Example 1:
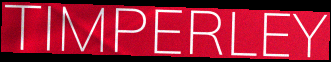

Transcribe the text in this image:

TIMPERLEY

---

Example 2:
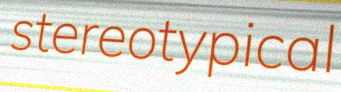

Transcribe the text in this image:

stereotypical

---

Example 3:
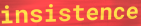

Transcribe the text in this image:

insistence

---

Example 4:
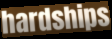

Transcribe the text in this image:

hardships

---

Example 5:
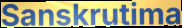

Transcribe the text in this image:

Sanskrutima